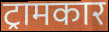
ट्रामकार